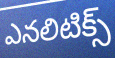
ఎనలిటిక్స్